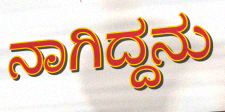
ನಾಗಿದ್ದನು